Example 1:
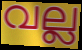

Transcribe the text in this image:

വല്ല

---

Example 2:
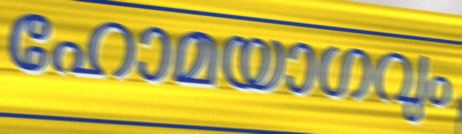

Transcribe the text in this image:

ഹോമയാഗവും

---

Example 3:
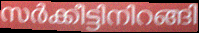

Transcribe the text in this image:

സർക്കീട്ടിനിറങ്ങി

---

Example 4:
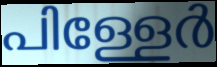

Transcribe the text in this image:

പിള്ളേർ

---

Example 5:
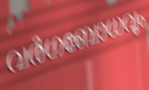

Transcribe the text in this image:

വർഗബോധവും